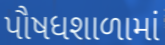
પૌષધશાળામાં